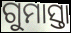
ଗୁମାସ୍ତା